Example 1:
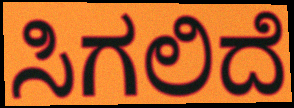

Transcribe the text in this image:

ಸಿಗಲಿದೆ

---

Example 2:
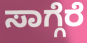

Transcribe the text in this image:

ಸಾಗ್ಗೆರೆ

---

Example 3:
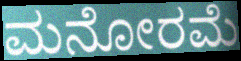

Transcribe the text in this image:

ಮನೋರಮೆ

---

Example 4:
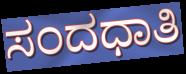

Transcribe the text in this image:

ಸಂದಧಾತಿ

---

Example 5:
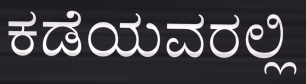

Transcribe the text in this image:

ಕಡೆಯವರಲ್ಲಿ